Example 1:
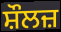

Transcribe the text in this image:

ਸ਼ੌਲਜ਼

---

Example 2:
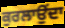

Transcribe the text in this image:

ਕੁਰਲਾਉਂਦਾ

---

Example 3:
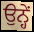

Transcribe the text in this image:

ਉਨ੍ਹੇਂ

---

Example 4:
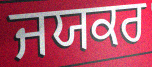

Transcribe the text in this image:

ਜਯਕਰ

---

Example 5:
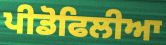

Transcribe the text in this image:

ਪੀਡੋਫਿਲੀਆ